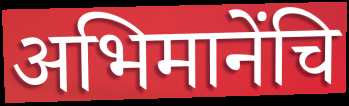
अभिमानेंचि